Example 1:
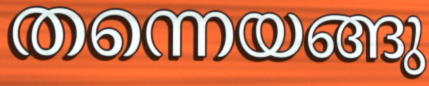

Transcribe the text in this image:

തന്നെയങ്ങു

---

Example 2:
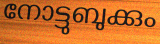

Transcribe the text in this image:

നോട്ടുബുക്കും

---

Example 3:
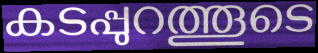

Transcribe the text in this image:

കടപ്പുറത്തൂടെ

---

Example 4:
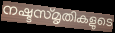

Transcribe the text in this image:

നഷ്ടസ്മൃതികളുടെ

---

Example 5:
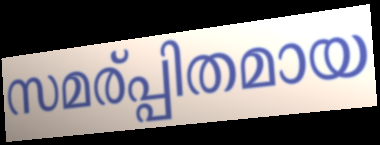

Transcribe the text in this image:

സമര്പ്പിതമായ